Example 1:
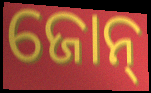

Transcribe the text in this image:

ଜୋନ୍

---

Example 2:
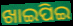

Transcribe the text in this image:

ଖାଇପିଇ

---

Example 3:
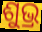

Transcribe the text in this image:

ଶୁଭ୍ର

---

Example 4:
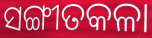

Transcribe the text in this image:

ସଙ୍ଗୀତକଳା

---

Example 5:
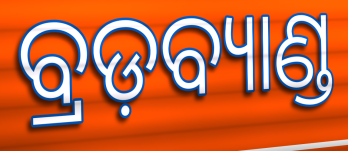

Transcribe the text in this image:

ବ୍ରଡ଼ବ୍ୟାଣ୍ଡ